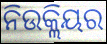
ନିଉକ୍ଲିୟର